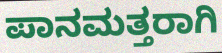
ಪಾನಮತ್ತರಾಗಿ